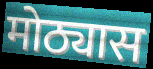
मोठ्यास